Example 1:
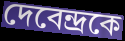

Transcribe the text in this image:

দেবেন্দ্রকে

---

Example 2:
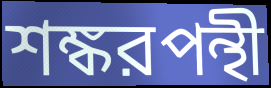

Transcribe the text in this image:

শঙ্করপন্থী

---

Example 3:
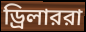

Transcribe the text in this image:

ড্রিলাররা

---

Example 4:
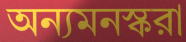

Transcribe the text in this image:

অন্যমনস্করা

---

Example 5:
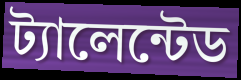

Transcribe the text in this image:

ট্যালেন্টেড